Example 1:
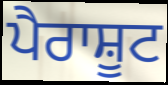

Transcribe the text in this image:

ਪੈਰਾਸ਼ੂਟ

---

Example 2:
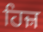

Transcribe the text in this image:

ਹਿਜ਼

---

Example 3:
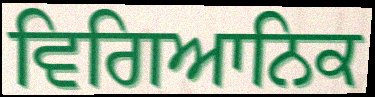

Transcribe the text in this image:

ਵਿਗਿਆਨਿਕ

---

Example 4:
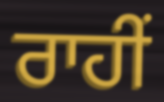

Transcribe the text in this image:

ਰਾਹੀਂ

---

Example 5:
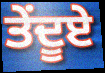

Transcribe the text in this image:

ਤੇਂਦੂਏ